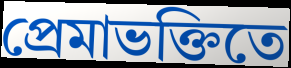
প্রেমাভক্তিতে